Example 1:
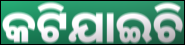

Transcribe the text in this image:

କଟିଯାଇଚି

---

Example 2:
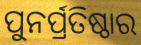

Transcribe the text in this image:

ପୁନର୍ପ୍ରତିଷ୍ଠାର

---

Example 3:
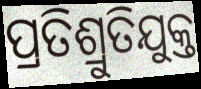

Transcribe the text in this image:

ପ୍ରତିଶ୍ରୁତିଯୁକ୍ତ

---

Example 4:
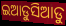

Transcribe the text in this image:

ଇଆଡୁସିଆଡୁ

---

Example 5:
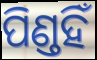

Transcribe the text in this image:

ପିଣ୍ଡହିଁ